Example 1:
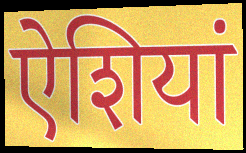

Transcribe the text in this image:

ऐशियां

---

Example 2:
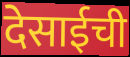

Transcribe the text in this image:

देसाईची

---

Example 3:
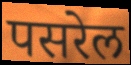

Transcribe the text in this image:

पसरेल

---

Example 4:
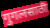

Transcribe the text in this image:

गुगलसाठी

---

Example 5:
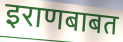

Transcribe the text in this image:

इराणबाबत